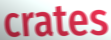
crates